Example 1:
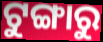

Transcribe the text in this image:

ଟୁଙ୍ଗାରୁ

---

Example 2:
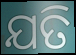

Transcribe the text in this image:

ଯତି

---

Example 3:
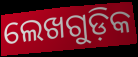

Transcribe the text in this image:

ଲେଖଗୁଡ଼ିକ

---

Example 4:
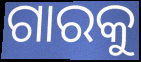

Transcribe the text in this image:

ଗାରକୁ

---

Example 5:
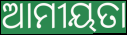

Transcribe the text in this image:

ଆମୀୟତା